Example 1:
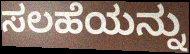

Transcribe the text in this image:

ಸಲಹೆಯನ್ನು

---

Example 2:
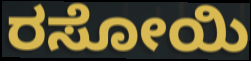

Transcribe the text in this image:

ರಸೋಯಿ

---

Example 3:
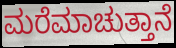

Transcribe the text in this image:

ಮರೆಮಾಚುತ್ತಾನೆ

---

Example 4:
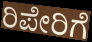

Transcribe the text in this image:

ರಿಪೇರಿಗೆ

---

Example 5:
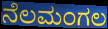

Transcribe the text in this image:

ನೆಲಮಂಗಲ